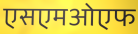
एसएमओएफ